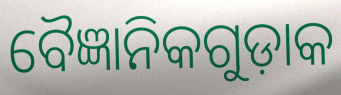
ବୈଜ୍ଞାନିକଗୁଡ଼ାକ